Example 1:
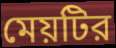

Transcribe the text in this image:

মেয়টির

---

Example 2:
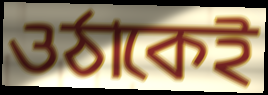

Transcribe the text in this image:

ওঠাকেই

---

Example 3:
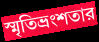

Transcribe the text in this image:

স্মৃতিভ্রংশতার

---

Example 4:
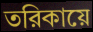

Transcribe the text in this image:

তরিকায়ে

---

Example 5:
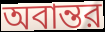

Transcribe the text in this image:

অবান্তর